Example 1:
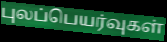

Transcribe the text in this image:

புலப்பெயர்வுகள்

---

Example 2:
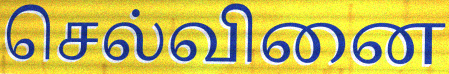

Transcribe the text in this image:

செல்வினை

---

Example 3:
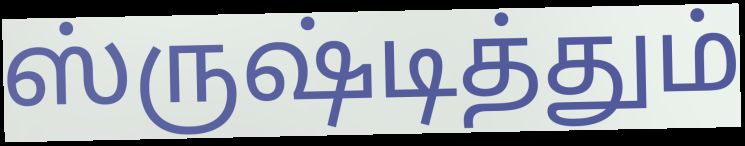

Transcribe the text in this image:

ஸ்ருஷ்டித்தும்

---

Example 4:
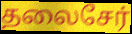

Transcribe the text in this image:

தலைசேர்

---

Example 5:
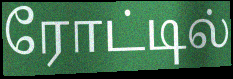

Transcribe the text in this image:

ரோட்டில்